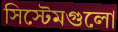
সিস্টেমগুলো